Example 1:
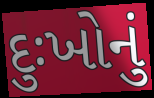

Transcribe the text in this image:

દુઃખોનું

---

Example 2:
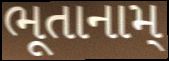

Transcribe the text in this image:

ભૂતાનામ્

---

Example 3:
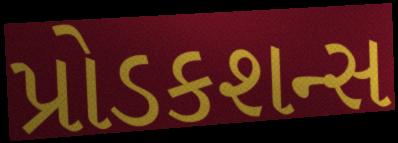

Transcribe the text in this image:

પ્રોડકશન્સ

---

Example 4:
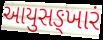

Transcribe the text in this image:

આયુસઙ્ખારં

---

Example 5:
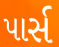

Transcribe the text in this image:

પાર્સ